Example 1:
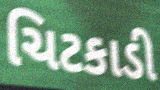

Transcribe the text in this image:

ચિટકાડી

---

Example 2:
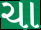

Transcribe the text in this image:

ચા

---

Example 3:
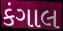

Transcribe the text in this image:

કંગાલ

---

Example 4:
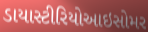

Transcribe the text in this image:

ડાયાસ્ટીરિયોઆઇસોમર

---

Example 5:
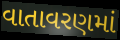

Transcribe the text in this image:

વાતાવરણમાં